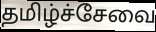
தமிழ்ச்சேவை